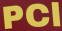
PCl